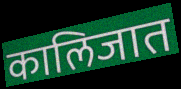
कालिजात